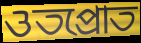
ওতপ্রোত